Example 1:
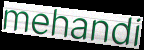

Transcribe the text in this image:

mehandi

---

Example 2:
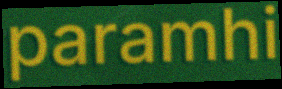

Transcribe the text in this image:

paramhi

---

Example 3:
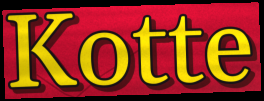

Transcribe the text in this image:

Kotte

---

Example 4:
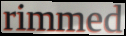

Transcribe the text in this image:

rimmed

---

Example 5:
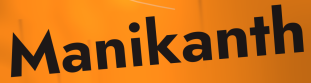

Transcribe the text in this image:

Manikanth